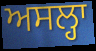
ਅਸਲ੍ਹਾ